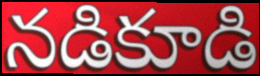
నడికూడి